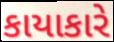
કાયાકારે